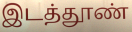
இடத்தூண்